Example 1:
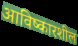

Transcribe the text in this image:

आविष्कारशील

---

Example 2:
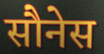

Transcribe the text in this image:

सौनेस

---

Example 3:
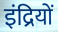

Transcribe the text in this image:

इंद्रियों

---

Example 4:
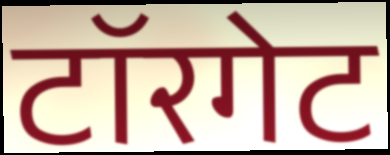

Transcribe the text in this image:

टॉरगेट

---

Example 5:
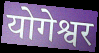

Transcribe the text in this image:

योगेश्वर